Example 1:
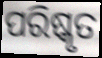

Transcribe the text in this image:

ପରିଷ୍କୃତ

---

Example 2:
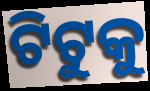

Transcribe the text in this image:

ଟିଟୁକୁ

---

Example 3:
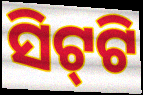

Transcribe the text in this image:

ସିଟ୍‌ଟି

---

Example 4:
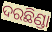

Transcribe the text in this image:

ଦରଛିଣ୍ଡା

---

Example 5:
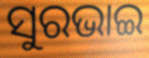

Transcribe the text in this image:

ସୁରଭାଇ